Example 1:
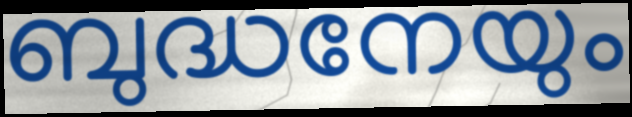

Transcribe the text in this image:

ബുദ്ധനേയും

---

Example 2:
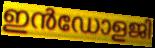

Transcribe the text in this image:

ഇൻഡോളജി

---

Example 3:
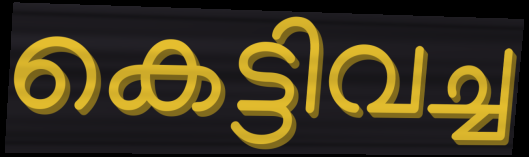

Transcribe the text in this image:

കെട്ടിവച്ച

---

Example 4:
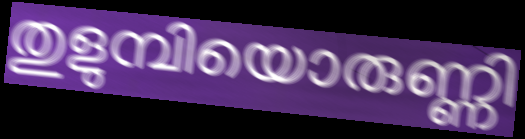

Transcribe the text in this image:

തുളുമ്പിയൊരുണ്ണി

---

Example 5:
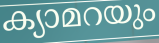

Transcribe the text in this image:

ക്യാമറയും